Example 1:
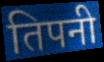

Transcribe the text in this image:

तिपनी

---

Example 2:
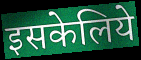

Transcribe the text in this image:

इसकेलिये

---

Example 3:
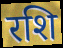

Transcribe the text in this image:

रशि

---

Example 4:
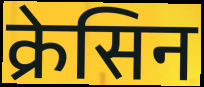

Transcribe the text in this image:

क्रेसिन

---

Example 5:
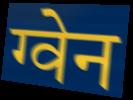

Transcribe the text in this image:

ग्वेन